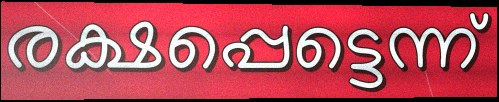
രക്ഷപ്പെട്ടെന്ന്